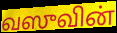
வஸுவின்